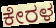
ಕೇರಳ